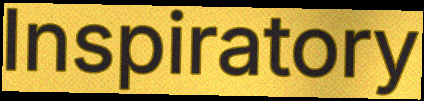
Inspiratory